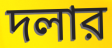
দলার